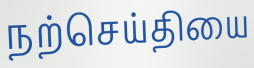
நற்செய்தியை